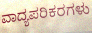
ವಾದ್ಯಪರಿಕರಗಳು